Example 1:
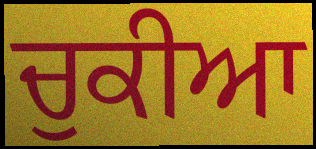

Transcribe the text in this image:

ਚੁਕੀਆ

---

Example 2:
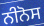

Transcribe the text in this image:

ਨੀਨੋਸ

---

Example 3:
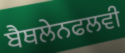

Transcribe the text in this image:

ਬੈਥਲੇਨਫਲਵੀ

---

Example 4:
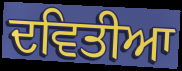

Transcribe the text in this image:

ਦਵਿਤੀਆ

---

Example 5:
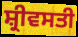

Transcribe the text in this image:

ਸ਼੍ਰੀਵਸਤੀ